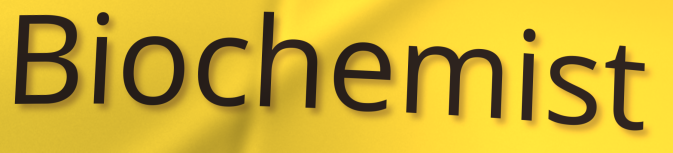
Biochemist